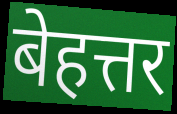
बेहत्तर